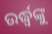
ଉର୍ଦ୍ଧ୍ୱଙ୍କୁ